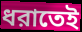
ধরাতেই